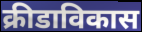
क्रीडाविकास